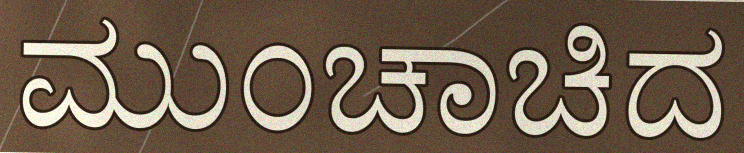
ಮುಂಚಾಚಿದ